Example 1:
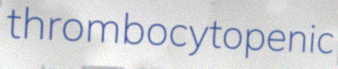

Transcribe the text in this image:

thrombocytopenic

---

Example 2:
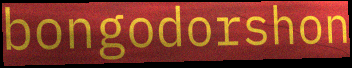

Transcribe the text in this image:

bongodorshon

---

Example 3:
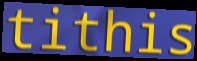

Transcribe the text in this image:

tithis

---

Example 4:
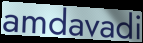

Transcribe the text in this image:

amdavadi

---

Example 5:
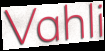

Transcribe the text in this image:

Vahli